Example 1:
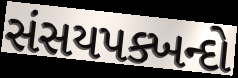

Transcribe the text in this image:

સંસયપક્ખન્દો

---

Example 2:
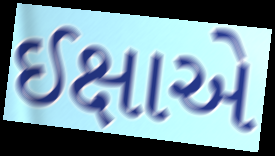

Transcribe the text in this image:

ઈક્ષાએ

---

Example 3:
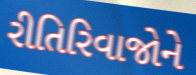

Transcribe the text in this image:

રીતિરિવાજોને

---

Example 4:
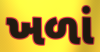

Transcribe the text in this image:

ખળાં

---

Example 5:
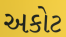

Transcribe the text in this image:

અકોટ